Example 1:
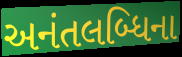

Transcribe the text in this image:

અનંતલબ્ધિના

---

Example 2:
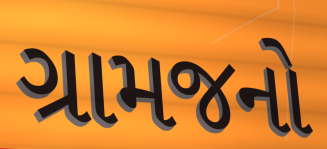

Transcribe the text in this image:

ગ્રામજનો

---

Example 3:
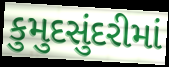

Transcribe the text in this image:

કુમુદસુંદરીમાં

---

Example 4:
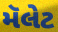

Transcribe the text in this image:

મૅલેટ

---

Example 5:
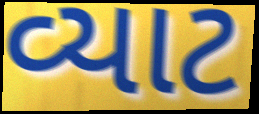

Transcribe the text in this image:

વ્યાટ